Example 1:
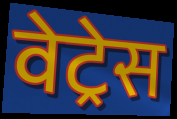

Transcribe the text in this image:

वेट्रेस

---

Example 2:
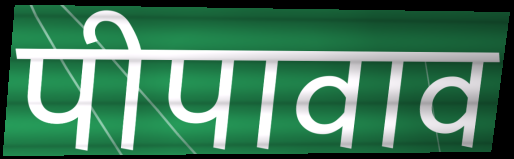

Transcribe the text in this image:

पीपावाव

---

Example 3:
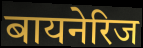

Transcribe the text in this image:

बायनेरिज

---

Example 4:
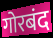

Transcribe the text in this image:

गोरबंद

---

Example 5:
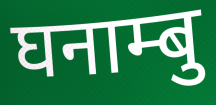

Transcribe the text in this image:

घनाम्बु